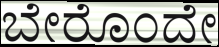
ಬೇರೊಂದೇ